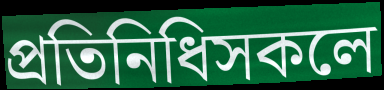
প্ৰতিনিধিসকলে